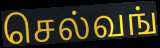
செல்வங்